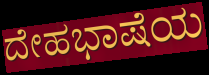
ದೇಹಭಾಷೆಯ